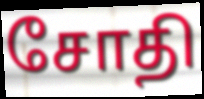
சோதி